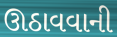
ઊઠાવવાની